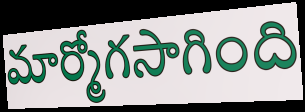
మార్మోగసాగింది